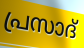
പ്രസാദ്